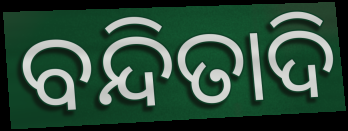
ବନ୍ଦିତାଦି